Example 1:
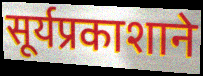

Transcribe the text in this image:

सूर्यप्रकाशाने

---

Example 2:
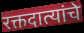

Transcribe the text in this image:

रक्तदात्यांचे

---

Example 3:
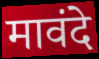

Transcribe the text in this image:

मावंदे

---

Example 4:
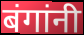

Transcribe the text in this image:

बंगांनी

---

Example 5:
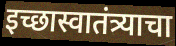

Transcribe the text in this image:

इच्छास्वातंत्र्याचा